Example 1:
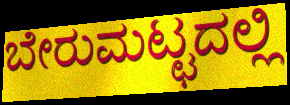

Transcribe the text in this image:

ಬೇರುಮಟ್ಟದಲ್ಲಿ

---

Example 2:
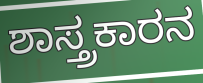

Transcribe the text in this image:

ಶಾಸ್ತ್ರಕಾರನ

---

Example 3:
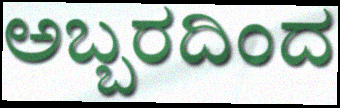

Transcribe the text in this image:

ಅಬ್ಬರದಿಂದ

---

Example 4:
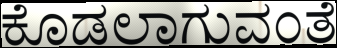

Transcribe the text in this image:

ಕೊಡಲಾಗುವಂತೆ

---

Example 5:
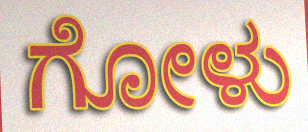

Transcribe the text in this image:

ಗೋಳು